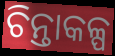
ଚିନ୍ତାକଳ୍ପ